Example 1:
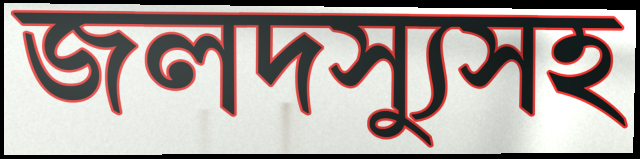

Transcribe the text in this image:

জলদস্যুসহ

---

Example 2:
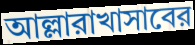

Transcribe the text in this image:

আল্লারাখাসাবের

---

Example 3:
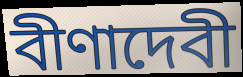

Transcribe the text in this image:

বীণাদেবী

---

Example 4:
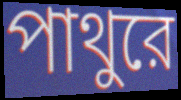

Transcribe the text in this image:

পাথুরে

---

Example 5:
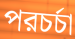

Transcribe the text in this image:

পরচর্চা